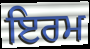
ਇਰਮ